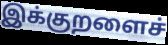
இக்குறளைச்